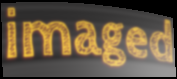
imaged